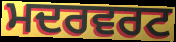
ਮਦਰਵਰਟ